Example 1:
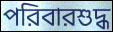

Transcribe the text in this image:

পরিবারশুদ্ধ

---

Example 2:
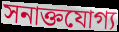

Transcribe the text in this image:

সনাক্তযোগ্য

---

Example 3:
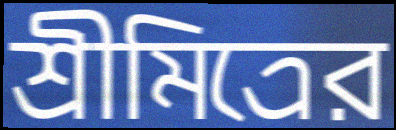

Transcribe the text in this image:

শ্রীমিত্রের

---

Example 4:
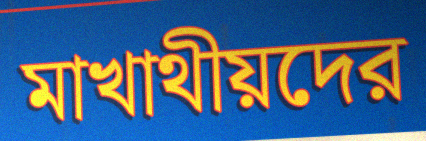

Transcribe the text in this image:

মাখাথীয়দের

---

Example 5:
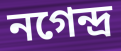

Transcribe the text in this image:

নগেন্দ্র